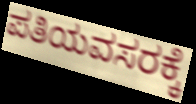
ಪತಿಯವಸರಕ್ಕೆ